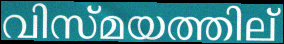
വിസ്മയത്തില്